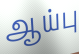
ஆய்பு